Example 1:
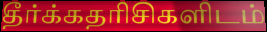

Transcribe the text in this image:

தீர்க்கதரிசிகளிடம்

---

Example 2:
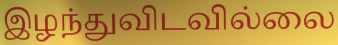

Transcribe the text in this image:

இழந்துவிடவில்லை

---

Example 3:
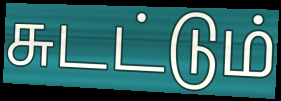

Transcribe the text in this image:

சுடட்டும்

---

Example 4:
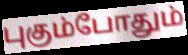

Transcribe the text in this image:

புகும்போதும்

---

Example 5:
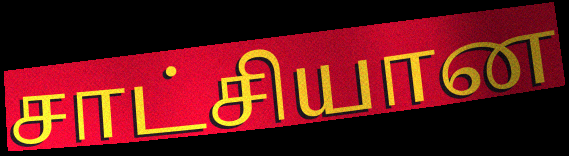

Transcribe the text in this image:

சாட்சியான